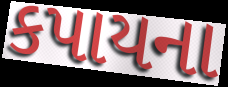
કપાયના